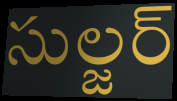
సుల్జర్